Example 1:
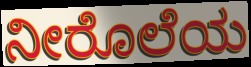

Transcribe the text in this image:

ನೀರೊಲೆಯ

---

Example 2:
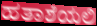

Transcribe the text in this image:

ಹತಾಶೆಯಲಿ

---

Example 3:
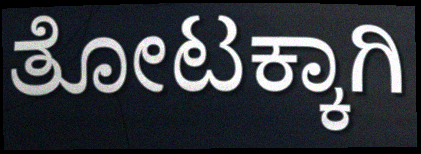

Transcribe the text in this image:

ತೋಟಕ್ಕಾಗಿ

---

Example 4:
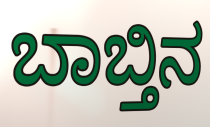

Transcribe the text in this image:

ಬಾಬ್ತಿನ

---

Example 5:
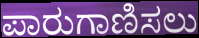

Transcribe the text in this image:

ಪಾರುಗಾಣಿಸಲು